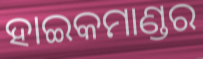
ହାଇକମାଣ୍ଡର